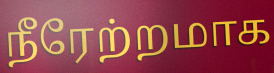
நீரேற்றமாக